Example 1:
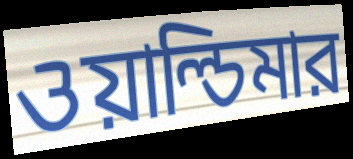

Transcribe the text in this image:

ওয়াল্ডিমার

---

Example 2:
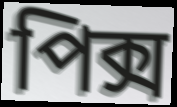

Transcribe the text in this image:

পিক্স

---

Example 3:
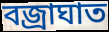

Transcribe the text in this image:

বজ্রাঘাত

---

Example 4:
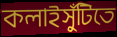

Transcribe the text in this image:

কলাইসুঁটিতে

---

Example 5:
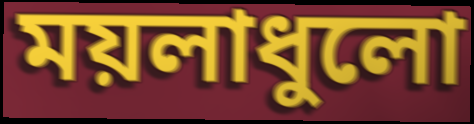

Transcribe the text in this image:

ময়লাধুলো